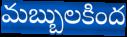
మబ్బులకింద